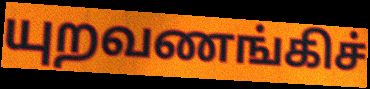
யுறவணங்கிச்